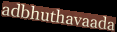
adbhuthavaada